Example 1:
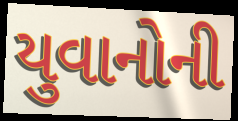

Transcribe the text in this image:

યુવાનોની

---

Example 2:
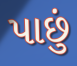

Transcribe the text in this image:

પાછું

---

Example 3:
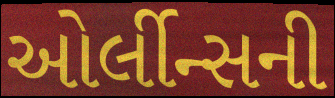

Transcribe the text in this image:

ઓર્લીન્સની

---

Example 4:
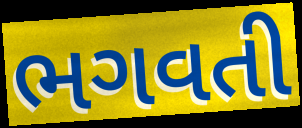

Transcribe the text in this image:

ભગવતી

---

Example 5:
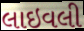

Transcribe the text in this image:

લાઇવલી